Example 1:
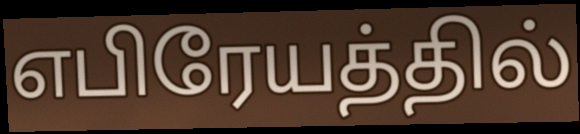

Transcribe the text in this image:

எபிரேயத்தில்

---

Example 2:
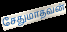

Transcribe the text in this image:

சேதுமாதவன்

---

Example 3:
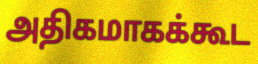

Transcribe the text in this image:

அதிகமாகக்கூட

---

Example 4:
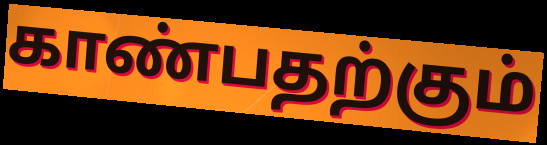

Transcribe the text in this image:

காண்பதற்கும்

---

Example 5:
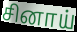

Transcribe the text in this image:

சினாய்